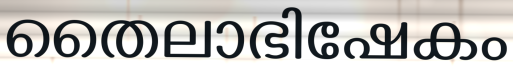
തൈലാഭിഷേകം